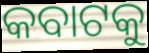
କବାଟକୁ